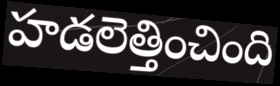
హడలెత్తించింది